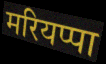
मरियप्पा